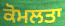
ਕੋਮਲਤਾ